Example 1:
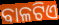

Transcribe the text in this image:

ବାଳଟିଏ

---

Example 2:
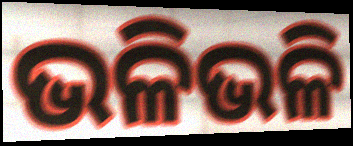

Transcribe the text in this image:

ଭଳିଭଳି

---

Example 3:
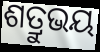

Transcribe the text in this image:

ଶତ୍ରୁଭୟ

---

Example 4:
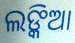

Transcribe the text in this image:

ଲଙ୍କିଆ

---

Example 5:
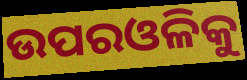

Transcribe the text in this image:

ଉପରଓଳିକୁ